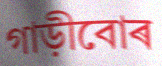
গাড়ীবোৰ